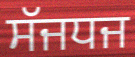
ਸੱਜਧਜ